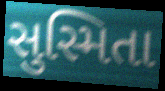
સુસ્મિતા